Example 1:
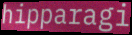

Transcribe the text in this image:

hipparagi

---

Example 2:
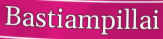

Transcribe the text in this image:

Bastiampillai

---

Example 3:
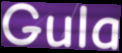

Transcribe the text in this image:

Gula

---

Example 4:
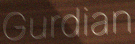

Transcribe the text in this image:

Gurdian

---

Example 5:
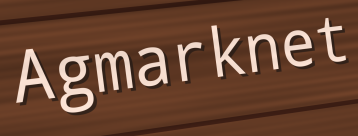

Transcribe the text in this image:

Agmarknet